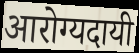
आरोग्यदायी